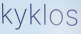
kyklos